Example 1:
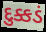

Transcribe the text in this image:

દુક્કડં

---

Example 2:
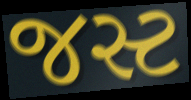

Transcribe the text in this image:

જસ્ટ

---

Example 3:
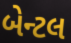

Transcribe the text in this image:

બેન્ટલ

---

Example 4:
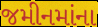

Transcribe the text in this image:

જમીનમાંના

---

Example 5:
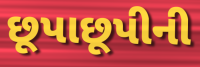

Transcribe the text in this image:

છૂપાછૂપીની